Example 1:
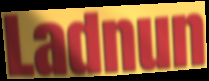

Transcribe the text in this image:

Ladnun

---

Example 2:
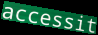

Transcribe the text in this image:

accessit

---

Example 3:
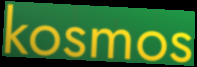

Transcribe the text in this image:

kosmos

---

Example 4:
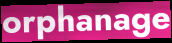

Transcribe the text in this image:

orphanage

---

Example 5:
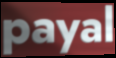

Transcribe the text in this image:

payal